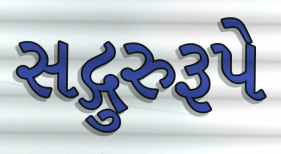
સદ્ગુરુરૂપે